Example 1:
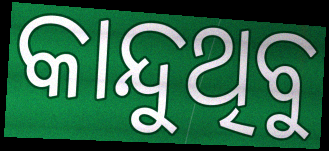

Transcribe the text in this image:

କାନ୍ଦୁଥିବୁ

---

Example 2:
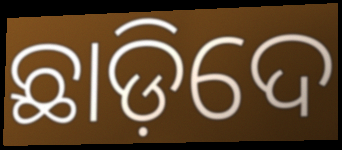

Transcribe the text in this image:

ଛାଡ଼ିଦେ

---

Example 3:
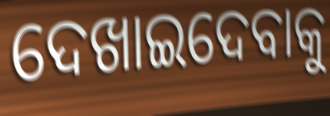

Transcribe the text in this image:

ଦେଖାଇଦେବାକୁ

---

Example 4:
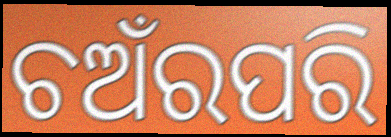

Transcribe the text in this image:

ଚଅଁରପରି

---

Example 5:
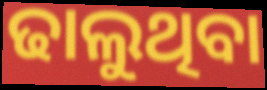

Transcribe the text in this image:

ଢାଲୁଥିବା